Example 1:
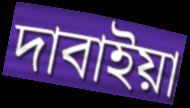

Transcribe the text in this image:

দাবাইয়া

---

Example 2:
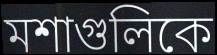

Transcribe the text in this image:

মশাগুলিকে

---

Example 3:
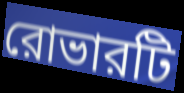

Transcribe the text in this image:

রোভারটি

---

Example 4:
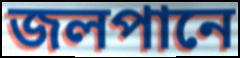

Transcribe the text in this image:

জলপানে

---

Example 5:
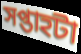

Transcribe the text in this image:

সপ্তাহটা